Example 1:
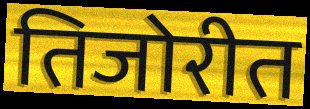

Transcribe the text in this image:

तिजोरीत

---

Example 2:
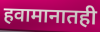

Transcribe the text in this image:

हवामानातही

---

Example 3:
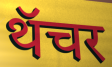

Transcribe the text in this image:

थॅचर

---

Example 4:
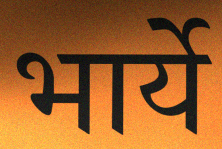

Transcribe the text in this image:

भार्ये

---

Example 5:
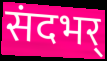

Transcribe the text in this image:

संदभर्